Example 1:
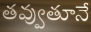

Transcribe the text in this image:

తవ్వుతూనే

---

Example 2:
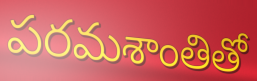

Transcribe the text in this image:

పరమశాంతితో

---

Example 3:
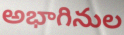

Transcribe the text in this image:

అభాగినుల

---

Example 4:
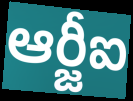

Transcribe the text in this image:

ఆర్జీఐ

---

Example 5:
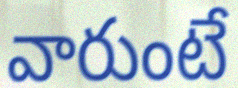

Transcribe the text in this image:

వారుంటే